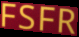
FSFR